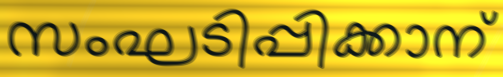
സംഘടിപ്പിക്കാന്